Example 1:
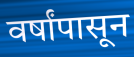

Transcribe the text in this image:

वर्षांपासून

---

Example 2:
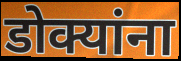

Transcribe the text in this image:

डोक्यांना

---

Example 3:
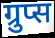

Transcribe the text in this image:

ग्रुप्स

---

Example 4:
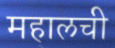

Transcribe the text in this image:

महालची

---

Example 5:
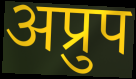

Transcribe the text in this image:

अप्रुप